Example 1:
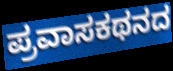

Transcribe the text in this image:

ಪ್ರವಾಸಕಥನದ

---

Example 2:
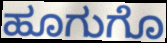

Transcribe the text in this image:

ಹೂಗುಗೊ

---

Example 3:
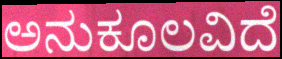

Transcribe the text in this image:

ಅನುಕೂಲವಿದೆ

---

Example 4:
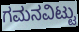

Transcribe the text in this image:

ಗಮನವಿಟ್ಟು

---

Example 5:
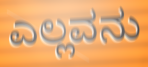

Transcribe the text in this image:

ಎಲ್ಲವನು